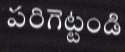
పరిగెట్టండి